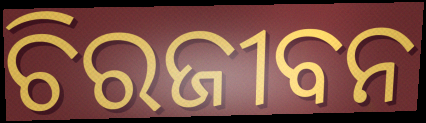
ଚିରଜୀବନ